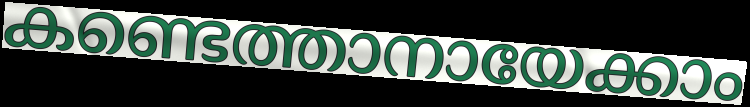
കണ്ടെത്താനായേക്കാം